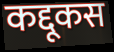
कद्दूकस